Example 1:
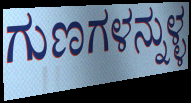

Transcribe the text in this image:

ಗುಣಗಳನ್ನುಳ್ಳ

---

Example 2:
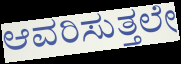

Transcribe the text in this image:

ಆವರಿಸುತ್ತಲೇ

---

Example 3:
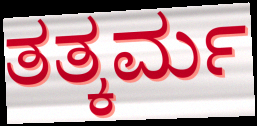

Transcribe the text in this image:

ತತ್ಕರ್ಮ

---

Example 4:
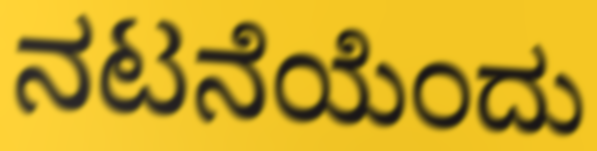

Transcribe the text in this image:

ನಟನೆಯೆಂದು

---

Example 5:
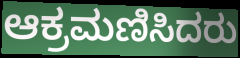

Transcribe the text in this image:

ಆಕ್ರಮಣಿಸಿದರು